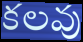
కలవు